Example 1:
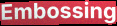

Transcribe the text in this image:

Embossing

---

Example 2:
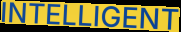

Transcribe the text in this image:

INTELLIGENT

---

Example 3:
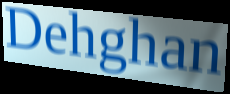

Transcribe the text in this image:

Dehghan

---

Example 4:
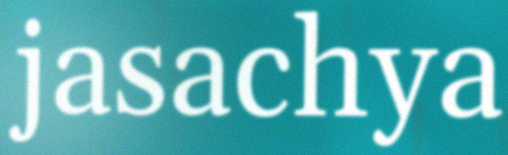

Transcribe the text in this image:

jasachya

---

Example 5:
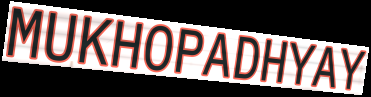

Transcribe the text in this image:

MUKHOPADHYAY